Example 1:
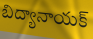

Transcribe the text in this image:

బిద్యానాయక్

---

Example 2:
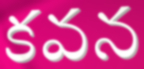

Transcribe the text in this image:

కవన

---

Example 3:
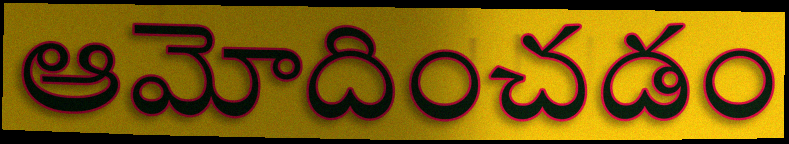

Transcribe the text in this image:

ఆమోదించడం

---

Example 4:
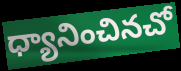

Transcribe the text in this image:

ధ్యానించినచో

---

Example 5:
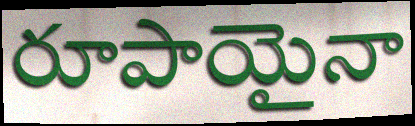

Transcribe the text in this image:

రూపాయైనా